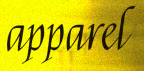
apparel